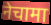
नेचामा